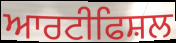
ਆਰਟੀਫਿਸ਼ਲ